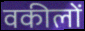
वकीलों